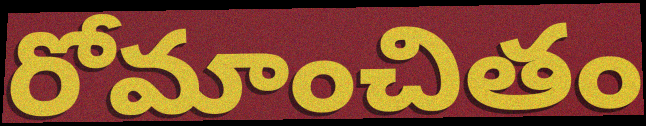
రోమాంచితం